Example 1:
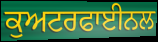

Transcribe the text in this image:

ਕੁਅਟਰਫਾਈਨਲ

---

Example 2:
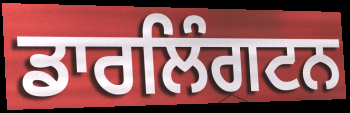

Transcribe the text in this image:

ਡਾਰਲਿੰਗਟਨ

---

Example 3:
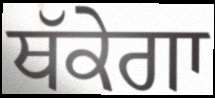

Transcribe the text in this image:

ਥੱਕੇਗਾ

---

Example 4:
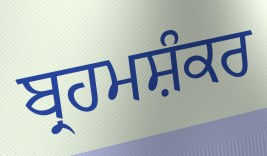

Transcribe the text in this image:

ਬ੍ਰਹਮਸ਼ੰਕਰ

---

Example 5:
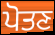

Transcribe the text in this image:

ਪੋਤਣ